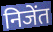
निजेंत